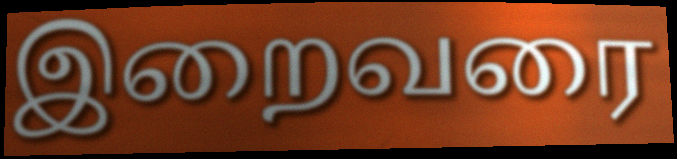
இறைவரை